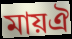
মায়ঐ